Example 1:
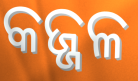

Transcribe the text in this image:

କଜ୍ଜଳ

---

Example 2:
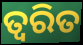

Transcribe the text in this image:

ତ୍ଵରିତ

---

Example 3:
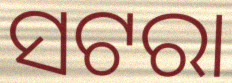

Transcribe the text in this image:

ସଟରା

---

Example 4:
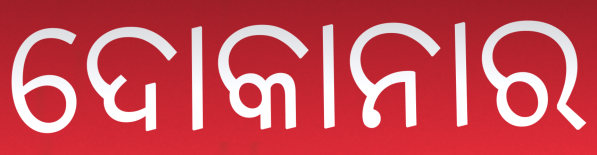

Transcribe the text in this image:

ଦୋକାନାର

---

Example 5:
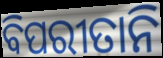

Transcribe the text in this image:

ବିପରୀତାନି